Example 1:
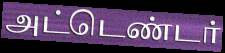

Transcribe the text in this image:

அட்டெண்டர்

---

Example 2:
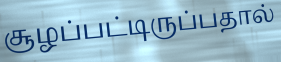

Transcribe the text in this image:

சூழப்பட்டிருப்பதால்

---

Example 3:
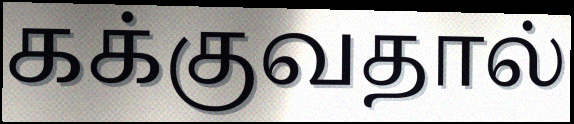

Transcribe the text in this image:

கக்குவதால்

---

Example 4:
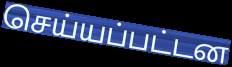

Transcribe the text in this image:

செய்யப்பட்டன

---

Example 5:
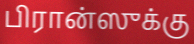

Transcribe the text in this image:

பிரான்ஸுக்கு